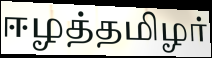
ஈழத்தமிழர்